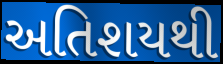
અતિશયથી